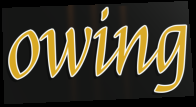
owing